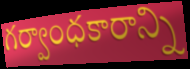
గర్వాంధకారాన్ని